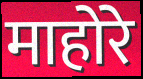
माहोरे